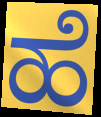
ಹೆ